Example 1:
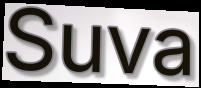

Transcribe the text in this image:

Suva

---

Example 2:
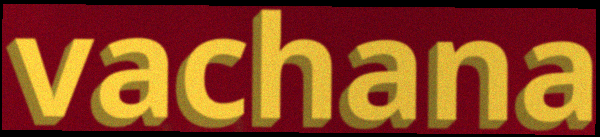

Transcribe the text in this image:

vachana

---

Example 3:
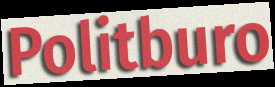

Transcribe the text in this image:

Politburo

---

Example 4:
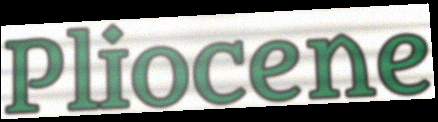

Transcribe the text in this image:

Pliocene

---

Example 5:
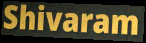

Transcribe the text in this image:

Shivaram